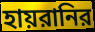
হায়রানির